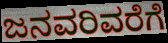
ಜನವರಿವರೆಗೆ